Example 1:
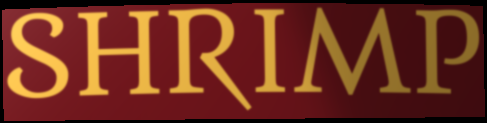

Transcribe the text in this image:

SHRIMP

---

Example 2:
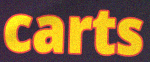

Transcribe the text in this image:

carts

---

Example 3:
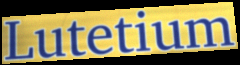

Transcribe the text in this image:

Lutetium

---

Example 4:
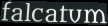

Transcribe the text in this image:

falcatum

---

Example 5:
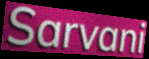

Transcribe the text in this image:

Sarvani